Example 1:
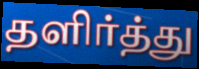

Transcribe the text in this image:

தளிர்த்து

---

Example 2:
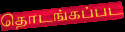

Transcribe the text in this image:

தொடங்கப்பட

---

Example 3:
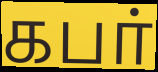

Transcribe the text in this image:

கபர்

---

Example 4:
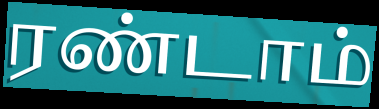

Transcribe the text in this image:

ரண்டாம்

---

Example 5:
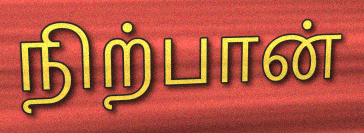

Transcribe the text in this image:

நிற்பான்